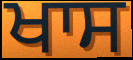
ਖਾਸ